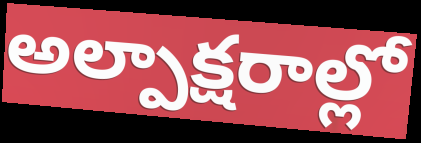
అల్పాక్షరాల్లో